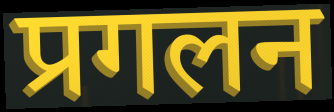
प्रगलन